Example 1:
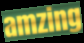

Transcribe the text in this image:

amzing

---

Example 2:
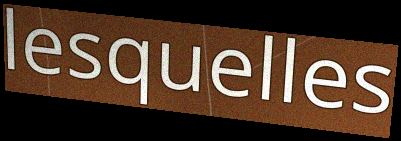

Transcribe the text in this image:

lesquelles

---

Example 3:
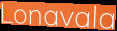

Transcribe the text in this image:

Lonavala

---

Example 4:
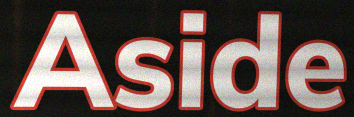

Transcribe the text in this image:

Aside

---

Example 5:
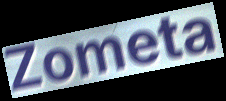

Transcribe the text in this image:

Zometa